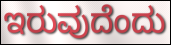
ಇರುವುದೆಂದು